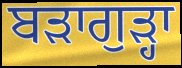
ਬੜਾਗੁੜ੍ਹਾ